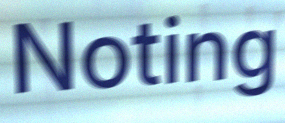
Noting